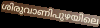
ശിരുവാണിപുഴയിലെ